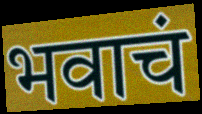
भवाचं